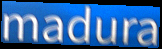
madura